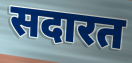
सदारत